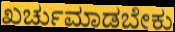
ಖರ್ಚುಮಾಡಬೇಕು